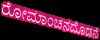
ರೋಮಾಂಚನದೊಡನೆ